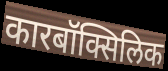
कारबॉक्सिलिक